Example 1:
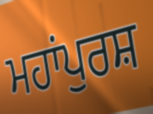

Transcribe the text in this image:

ਮਹਾਂਪੁਰਸ਼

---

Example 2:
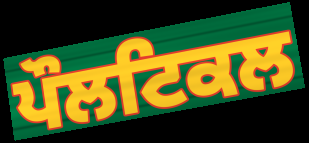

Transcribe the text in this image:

ਪੌਲਟਿਕਲ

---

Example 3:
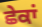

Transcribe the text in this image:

ਛੇਕਾਂ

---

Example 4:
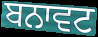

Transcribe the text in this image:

ਬਨਾਵਟ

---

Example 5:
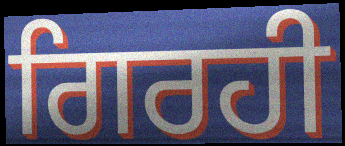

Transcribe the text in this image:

ਗਿਰਹੀ